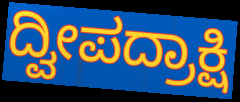
ದ್ವೀಪದ್ರಾಕ್ಷಿ